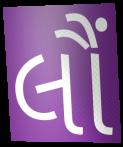
લૌં